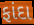
ફાંદા